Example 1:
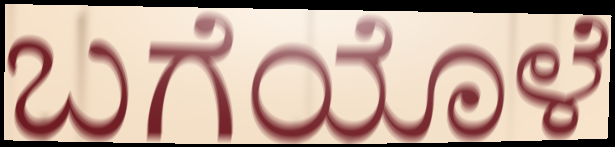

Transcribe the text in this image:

ಬಗೆಯೊಳೆ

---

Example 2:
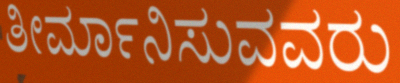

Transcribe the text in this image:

ತೀರ್ಮಾನಿಸುವವರು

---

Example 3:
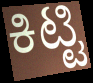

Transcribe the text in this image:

ಕಿಟ್ಟಿ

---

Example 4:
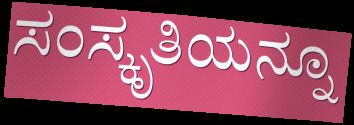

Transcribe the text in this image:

ಸಂಸ್ಕೃತಿಯನ್ನೂ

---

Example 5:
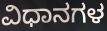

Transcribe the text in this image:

ವಿಧಾನಗಳ